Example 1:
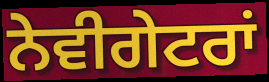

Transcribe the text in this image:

ਨੇਵੀਗੇਟਰਾਂ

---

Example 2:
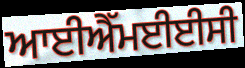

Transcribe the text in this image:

ਆਈਐੱਮਈਈਸੀ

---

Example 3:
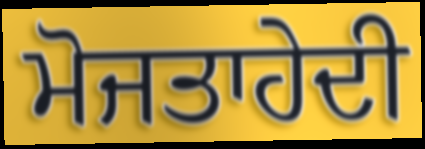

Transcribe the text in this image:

ਮੋਜਤਾਹੇਦੀ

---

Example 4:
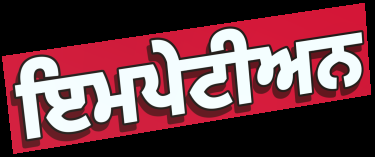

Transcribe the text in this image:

ਇਮਪੇਟੀਅਨ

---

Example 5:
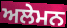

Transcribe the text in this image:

ਅਲੇਮਨ